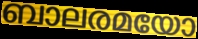
ബാലരമയോ